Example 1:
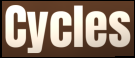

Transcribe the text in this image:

Cycles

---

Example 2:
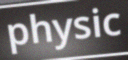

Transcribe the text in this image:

physic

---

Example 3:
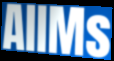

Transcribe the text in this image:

AIIMs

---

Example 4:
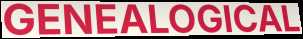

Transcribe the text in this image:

GENEALOGICAL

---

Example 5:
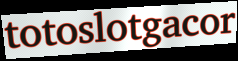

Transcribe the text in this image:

totoslotgacor